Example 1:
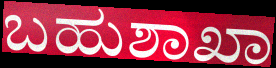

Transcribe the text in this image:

ಬಹುಶಾಖಾ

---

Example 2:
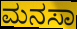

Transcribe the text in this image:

ಮನಸಾ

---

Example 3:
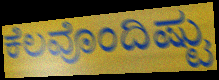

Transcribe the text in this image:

ಕೆಲವೊಂದಿಷ್ಟು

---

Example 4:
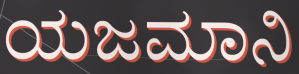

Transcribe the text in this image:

ಯಜಮಾನಿ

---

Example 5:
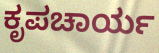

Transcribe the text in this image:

ಕೃಪಚಾರ್ಯ